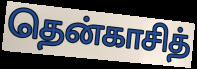
தென்காசித்